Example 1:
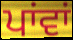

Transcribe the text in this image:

ਪਾਂਵਾਂ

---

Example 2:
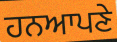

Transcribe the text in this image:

ਹਨਆਪਣੇ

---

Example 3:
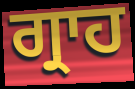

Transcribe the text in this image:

ਗ੍ਰਾਹ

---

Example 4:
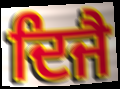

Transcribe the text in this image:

ਦਿਜੈ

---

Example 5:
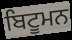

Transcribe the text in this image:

ਬਿਟੂਮਨ